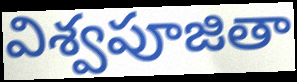
విశ్వపూజితా